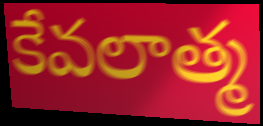
కేవలాత్మ